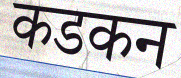
कडकन